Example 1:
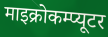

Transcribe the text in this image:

माइक्रोकम्प्यूटर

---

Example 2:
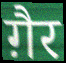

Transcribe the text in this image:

ग़ैर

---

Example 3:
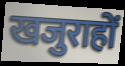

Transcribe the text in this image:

खजुराहों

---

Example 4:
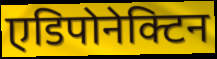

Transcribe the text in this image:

एडिपोनेक्टिन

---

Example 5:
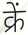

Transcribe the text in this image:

क्रें